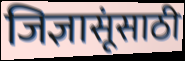
जिज्ञासूंसाठी